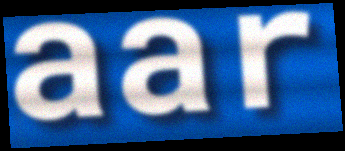
aar